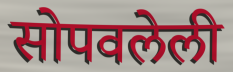
सोपवलेली